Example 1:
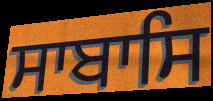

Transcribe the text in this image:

ਸਾਬਾਸਿ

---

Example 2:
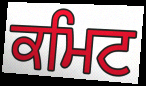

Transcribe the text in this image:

ਕਮਿਟ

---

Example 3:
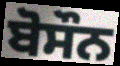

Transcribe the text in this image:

ਬੋਸੌਨ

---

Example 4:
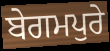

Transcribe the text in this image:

ਬੇਗਮਪੁਰੇ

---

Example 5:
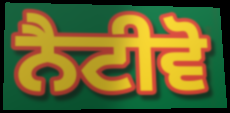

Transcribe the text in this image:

ਨੈਟੀਵੋ